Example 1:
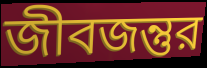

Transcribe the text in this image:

জীবজন্তুর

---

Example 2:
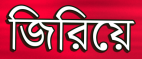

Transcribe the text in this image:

জিরিয়ে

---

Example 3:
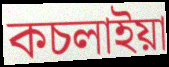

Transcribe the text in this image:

কচলাইয়া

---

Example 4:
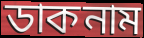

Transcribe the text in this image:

ডাকনাম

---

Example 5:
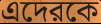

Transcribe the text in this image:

এদেরকে